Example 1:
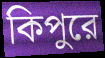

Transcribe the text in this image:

কিপুরে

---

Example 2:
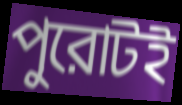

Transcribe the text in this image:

পুরোটই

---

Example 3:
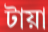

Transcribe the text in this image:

টায়া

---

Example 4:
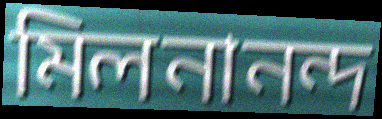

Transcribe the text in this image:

মিলনানন্দ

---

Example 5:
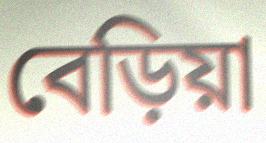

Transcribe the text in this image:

বেড়িয়া